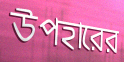
উপহারের